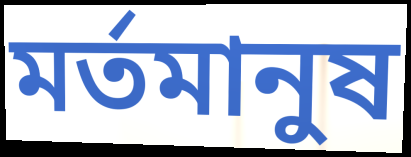
মর্তমানুষ